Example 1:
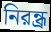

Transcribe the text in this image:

নিরন্ধ্র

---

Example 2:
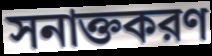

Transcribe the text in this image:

সনাক্তকরণ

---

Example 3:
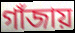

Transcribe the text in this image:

গাঁজায়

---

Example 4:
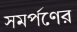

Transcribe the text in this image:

সমর্পণের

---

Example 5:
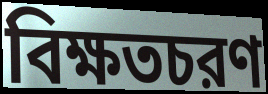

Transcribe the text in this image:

বিক্ষতচরণ